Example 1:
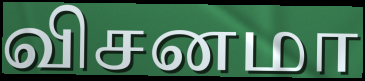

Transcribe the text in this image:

விசனமா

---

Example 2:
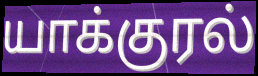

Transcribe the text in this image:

யாக்குரல்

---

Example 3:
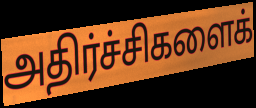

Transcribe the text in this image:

அதிர்ச்சிகளைக்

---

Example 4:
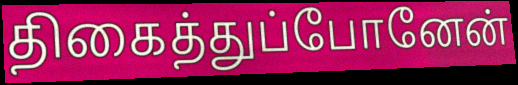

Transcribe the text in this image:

திகைத்துப்போனேன்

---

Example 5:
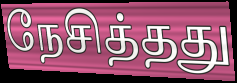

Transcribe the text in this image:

நேசித்தது